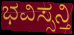
ಭವಿಸ್ಸನ್ತಿ